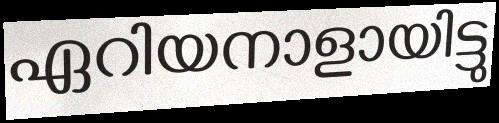
ഏറിയനാളായിട്ടു